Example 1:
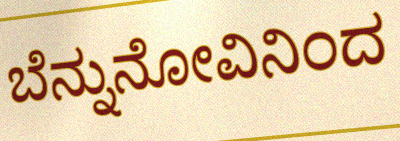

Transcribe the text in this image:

ಬೆನ್ನುನೋವಿನಿಂದ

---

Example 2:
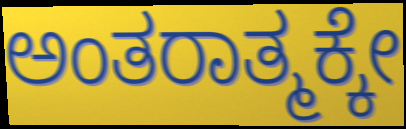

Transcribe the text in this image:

ಅಂತರಾತ್ಮಕ್ಕೇ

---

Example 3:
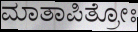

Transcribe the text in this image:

ಮಾತಾಪಿತ್ರೋಃ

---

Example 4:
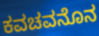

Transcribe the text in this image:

ಕವಚವನೊನ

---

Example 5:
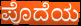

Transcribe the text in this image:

ಪೊದೆಯ